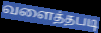
வளைத்தபடி